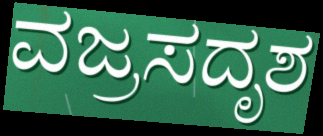
ವಜ್ರಸದೃಶ